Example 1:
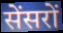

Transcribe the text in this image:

सेंसरों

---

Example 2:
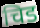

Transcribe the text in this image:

चिड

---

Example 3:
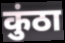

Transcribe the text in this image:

कुंठा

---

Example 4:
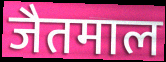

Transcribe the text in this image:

जैतमाल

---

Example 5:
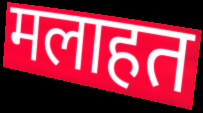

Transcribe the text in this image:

मलाहत